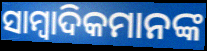
ସାମ୍ବାଦିକମାନଙ୍କ